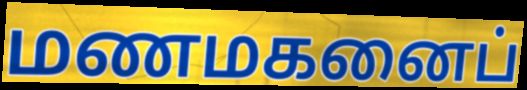
மணமகனைப்